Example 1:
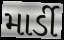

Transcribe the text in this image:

માર્ડી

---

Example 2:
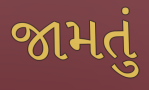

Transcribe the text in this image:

જામતું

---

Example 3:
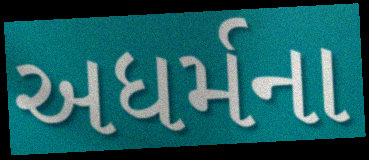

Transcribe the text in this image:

અધર્મના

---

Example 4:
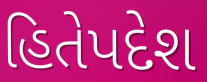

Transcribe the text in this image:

હિતેપદેશ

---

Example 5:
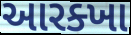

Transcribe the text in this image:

આરક્ખા